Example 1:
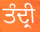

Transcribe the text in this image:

ਤੰਦ੍ਰੀ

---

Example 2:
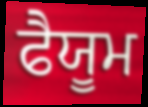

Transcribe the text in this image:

ਫੈਯੂਮ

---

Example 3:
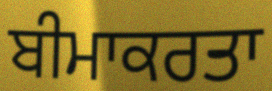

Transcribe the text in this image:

ਬੀਮਾਕਰਤਾ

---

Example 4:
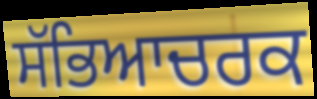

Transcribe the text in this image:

ਸੱਭਿਆਚਰਕ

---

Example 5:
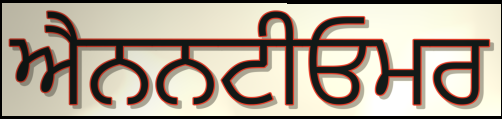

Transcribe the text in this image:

ਐਨਨਟੀਓਮਰ